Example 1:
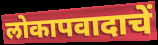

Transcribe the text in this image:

लोकापवादाचें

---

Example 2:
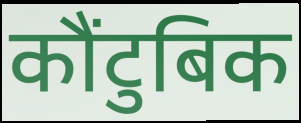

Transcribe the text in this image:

कौंटुबिक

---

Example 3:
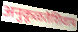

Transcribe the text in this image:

अनुकूळतेशिवाय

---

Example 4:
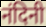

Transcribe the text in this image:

नंदिनी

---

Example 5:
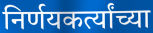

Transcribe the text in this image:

निर्णयकर्त्यांच्या